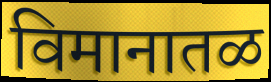
विमानातळ